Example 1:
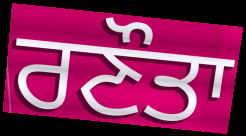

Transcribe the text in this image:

ਰਣੌਤਾ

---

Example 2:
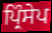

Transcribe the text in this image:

ਪ੍ਰਿੰਸੇਪ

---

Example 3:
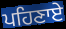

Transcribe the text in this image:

ਪਹਿਣਾਏ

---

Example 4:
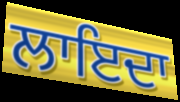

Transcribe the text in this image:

ਲਾਇਦਾ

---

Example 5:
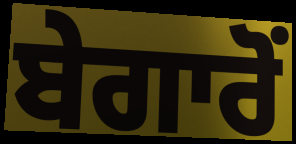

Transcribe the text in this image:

ਬੇਗਾਰੋਂ